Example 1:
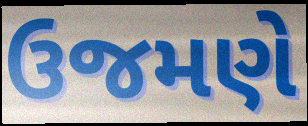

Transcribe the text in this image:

ઉજમણે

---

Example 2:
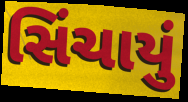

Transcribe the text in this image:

સિંચાયું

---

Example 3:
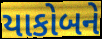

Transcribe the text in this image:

યાકોબને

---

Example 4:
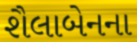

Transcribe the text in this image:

શૈલાબેનના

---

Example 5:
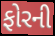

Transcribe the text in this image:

ફોરની